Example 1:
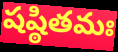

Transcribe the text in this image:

షష్ఠితమః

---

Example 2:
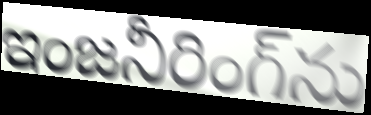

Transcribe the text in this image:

ఇంజనీరింగ్‌ను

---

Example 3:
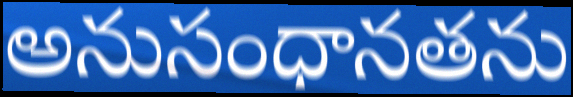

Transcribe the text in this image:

అనుసంధానతను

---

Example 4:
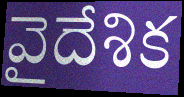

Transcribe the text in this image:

వైదేశిక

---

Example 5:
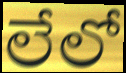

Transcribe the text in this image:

లేలో